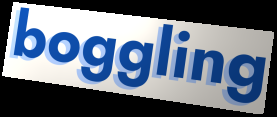
boggling